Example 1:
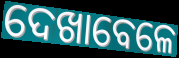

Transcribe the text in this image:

ଦେଖାବେଳେ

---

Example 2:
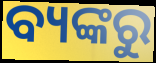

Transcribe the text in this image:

ବ୍ୟଙ୍କରୁ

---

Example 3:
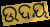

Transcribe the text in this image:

ଉଦୟ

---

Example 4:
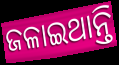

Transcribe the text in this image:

ଜଳାଇଥାନ୍ତି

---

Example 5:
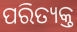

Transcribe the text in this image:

ପରିତ୍ୟକ୍ତ